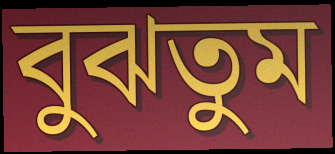
বুঝতুম